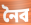
নৈব